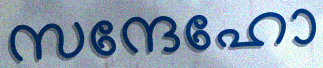
സന്ദേഹോ